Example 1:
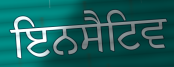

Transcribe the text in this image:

ਇਨਸੈਟਿਵ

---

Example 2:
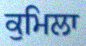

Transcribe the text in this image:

ਕੁਮਿਲਾ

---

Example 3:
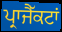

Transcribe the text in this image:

ਪ੍ਰਾਜੈੱਕਟਾਂ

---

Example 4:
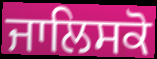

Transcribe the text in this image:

ਜਾਲਿਸਕੋ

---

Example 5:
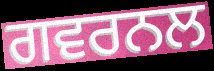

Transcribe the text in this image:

ਗਵਰਨਲ